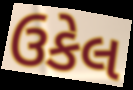
ઉકેલ